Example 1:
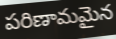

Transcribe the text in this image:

పరిణామమైన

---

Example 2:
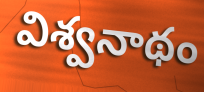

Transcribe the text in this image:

విశ్వనాథం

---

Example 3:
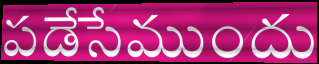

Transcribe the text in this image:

పడేసేముందు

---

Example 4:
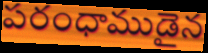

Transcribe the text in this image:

పరంధాముడైన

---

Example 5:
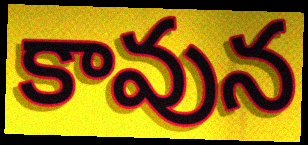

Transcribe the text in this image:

కావున